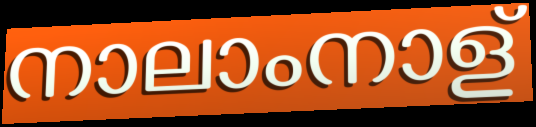
നാലാംനാള്